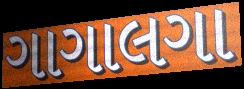
ગાગાલગા